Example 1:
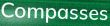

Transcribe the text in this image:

Compasses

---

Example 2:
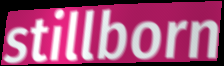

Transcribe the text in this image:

stillborn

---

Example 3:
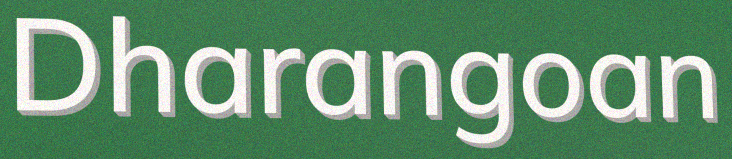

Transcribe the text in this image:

Dharangoan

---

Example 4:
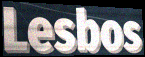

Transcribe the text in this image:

Lesbos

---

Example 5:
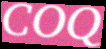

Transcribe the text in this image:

COQ